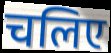
चलिए